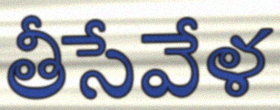
తీసేవేళ